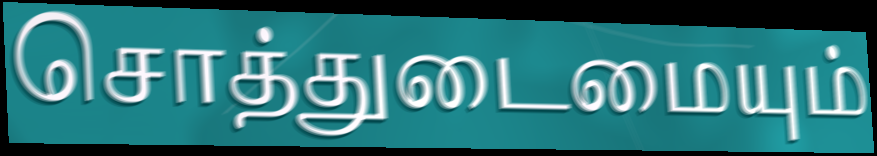
சொத்துடைமையும்